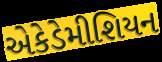
એકેડેમીશિયન